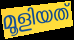
മൂളിയത്